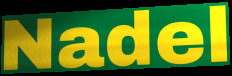
Nadel